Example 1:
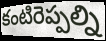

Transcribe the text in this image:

కంటిరెప్పల్ని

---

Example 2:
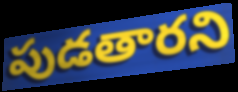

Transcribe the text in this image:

పుడతారని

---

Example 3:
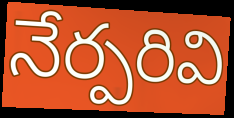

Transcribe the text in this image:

నేర్పరివి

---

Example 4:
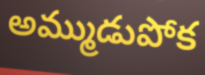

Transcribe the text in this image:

అమ్ముడుపోక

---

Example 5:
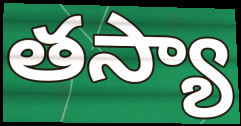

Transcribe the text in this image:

తస్యా